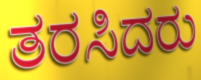
ತರಸಿದರು